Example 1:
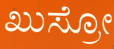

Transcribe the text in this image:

ಖುಸ್ರೋ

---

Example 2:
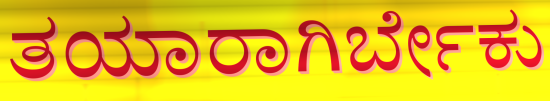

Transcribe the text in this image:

ತಯಾರಾಗಿರ್ಬೇಕು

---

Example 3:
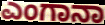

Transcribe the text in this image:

ಎಂಗಾನಾ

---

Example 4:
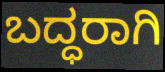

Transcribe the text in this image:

ಬದ್ಧರಾಗಿ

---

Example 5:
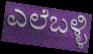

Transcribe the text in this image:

ಎಲೆಬಳ್ಳಿ